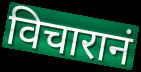
विचारानं